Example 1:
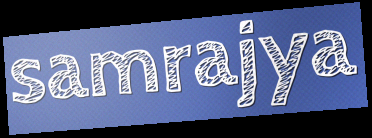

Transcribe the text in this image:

samrajya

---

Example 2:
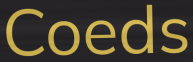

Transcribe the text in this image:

Coeds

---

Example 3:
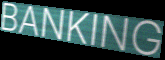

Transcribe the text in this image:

BANKING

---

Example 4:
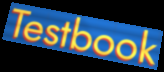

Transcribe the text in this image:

Testbook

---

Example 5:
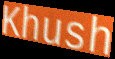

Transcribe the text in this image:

Khush